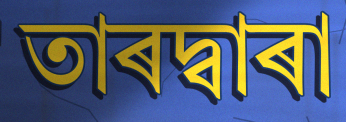
তাৰদ্বাৰা